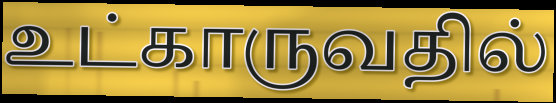
உட்காருவதில்